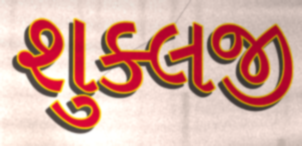
શુક્લજી